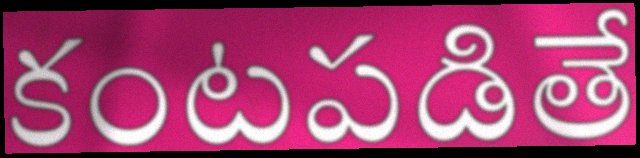
కంటపడితే